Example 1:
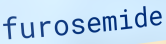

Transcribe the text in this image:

furosemide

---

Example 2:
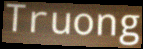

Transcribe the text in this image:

Truong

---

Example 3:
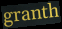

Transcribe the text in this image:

granth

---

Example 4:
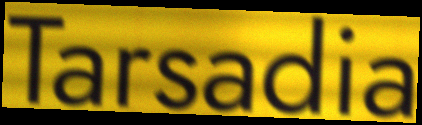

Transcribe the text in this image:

Tarsadia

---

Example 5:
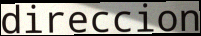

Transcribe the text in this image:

direccion